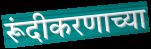
रूंदीकरणाच्या